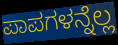
ಪಾಪಗಳನ್ನೆಲ್ಲ